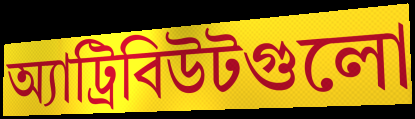
অ্যাট্রিবিউটগুলো